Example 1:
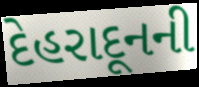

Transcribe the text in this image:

દેહરાદૂનની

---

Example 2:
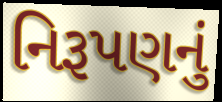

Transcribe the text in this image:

નિરૂપણનું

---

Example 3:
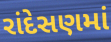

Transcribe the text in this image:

રાંદેસણમાં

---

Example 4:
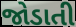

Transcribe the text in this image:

જોડાતી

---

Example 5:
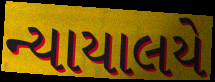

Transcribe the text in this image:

ન્યાયાલયે